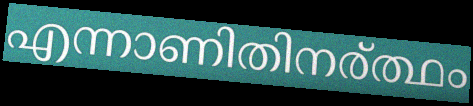
എന്നാണിതിനര്ത്ഥം